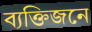
ব্যক্তিজনে